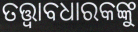
ତତ୍ତ୍ଵାବଧାରକଙ୍କୁ